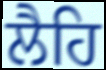
ਲੈਹਿ